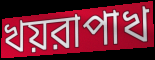
খয়রাপাখ